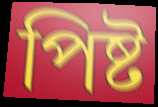
পিষ্ট